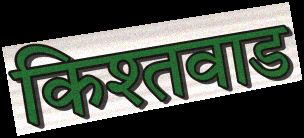
किश्तवाड